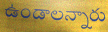
ఉండాలన్నారు